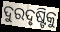
ଦୁରଦୃଷ୍ଟିକୁ